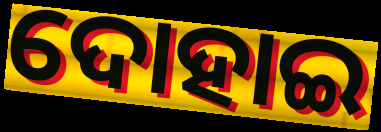
ଦୋହାଇ